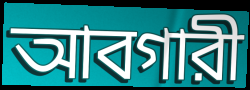
আবগারী